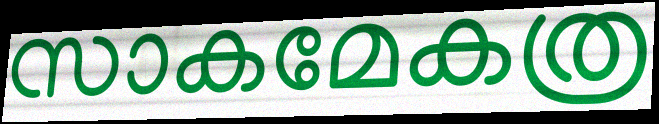
സാകമേകത്ര